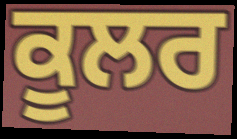
ਕੂਲਰ